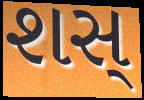
શસ્